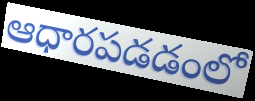
ఆధారపడడంలో